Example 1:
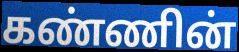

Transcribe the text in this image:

கண்ணின்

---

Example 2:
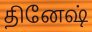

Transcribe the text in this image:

தினேஷ்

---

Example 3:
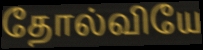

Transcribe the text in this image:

தோல்வியே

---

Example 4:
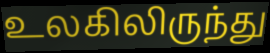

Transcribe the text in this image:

உலகிலிருந்து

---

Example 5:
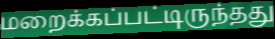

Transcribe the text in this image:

மறைக்கப்பட்டிருந்தது